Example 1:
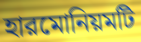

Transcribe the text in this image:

হারমোনিয়মটি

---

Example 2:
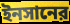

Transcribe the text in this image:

ইনসানের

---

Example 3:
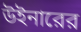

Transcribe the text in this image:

উইনারের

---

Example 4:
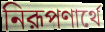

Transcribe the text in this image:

নিরূপণার্থে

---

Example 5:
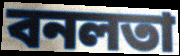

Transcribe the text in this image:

বনলতা